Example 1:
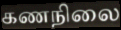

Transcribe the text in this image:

கணநிலை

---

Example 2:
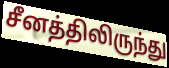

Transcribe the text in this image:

சீனத்திலிருந்து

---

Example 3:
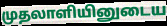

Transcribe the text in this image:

முதலாளியினுடைய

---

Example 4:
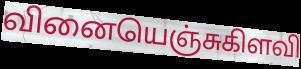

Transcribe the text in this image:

வினையெஞ்சுகிளவி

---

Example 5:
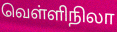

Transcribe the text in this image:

வெள்ளிநிலா